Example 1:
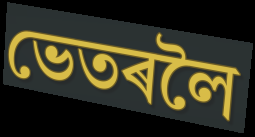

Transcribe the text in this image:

ভেতৰলৈ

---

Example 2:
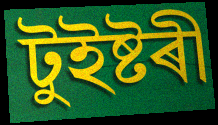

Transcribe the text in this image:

টুইষ্টৰী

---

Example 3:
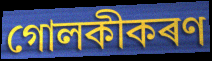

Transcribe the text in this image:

গোলকীকৰণ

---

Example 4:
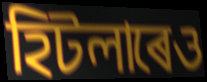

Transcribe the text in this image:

হিটলাৰেও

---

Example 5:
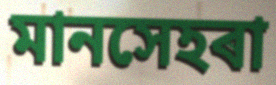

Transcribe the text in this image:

মানসেহৰা